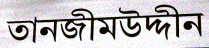
তানজীমউদ্দীন